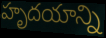
హృదయాన్ని